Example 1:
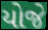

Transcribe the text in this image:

યોજે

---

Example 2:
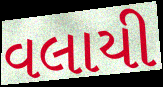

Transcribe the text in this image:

વલાયી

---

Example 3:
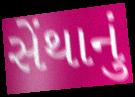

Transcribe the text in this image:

સેંથાનું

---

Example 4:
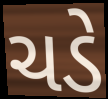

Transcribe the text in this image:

ચડે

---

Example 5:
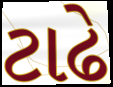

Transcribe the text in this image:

ટાઢે